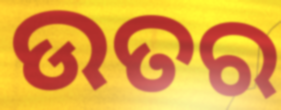
ଉତର